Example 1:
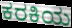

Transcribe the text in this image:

ಕರಕಿಯ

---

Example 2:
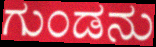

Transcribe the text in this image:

ಗುಂಡನು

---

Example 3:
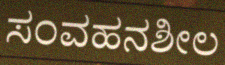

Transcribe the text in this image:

ಸಂವಹನಶೀಲ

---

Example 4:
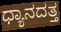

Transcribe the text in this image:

ಧ್ಯಾನದತ್ತ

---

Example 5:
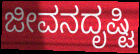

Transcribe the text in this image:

ಜೀವನದೃಷ್ಟಿ